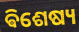
ଵିଶେଷ୍ୟ